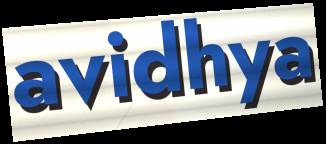
avidhya